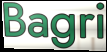
Bagri